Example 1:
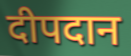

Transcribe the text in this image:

दीपदान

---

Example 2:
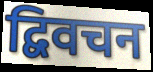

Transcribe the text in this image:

द्विवचन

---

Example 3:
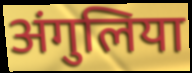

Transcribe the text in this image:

अंगुलिया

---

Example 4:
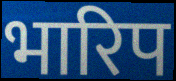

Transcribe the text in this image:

भारिप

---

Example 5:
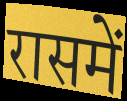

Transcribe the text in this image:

रासमें